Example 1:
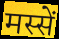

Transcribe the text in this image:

मस्सें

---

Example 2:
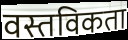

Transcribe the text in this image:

वस्तविकता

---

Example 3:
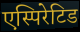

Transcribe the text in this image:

एस्पिरेटिड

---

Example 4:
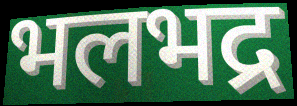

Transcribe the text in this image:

भलभद्र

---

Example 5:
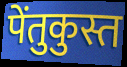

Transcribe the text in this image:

पेंतुकुस्त